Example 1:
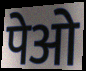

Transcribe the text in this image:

पेओ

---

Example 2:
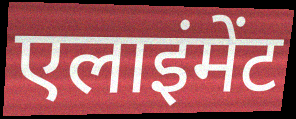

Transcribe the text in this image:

एलाइंमेंट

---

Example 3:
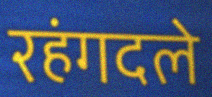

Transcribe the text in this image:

रहंगदले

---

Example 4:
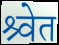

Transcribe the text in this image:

श्र्वेत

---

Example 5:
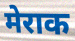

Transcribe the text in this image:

मेराक